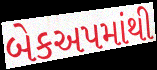
બેકઅપમાંથી